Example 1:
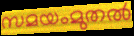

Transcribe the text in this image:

സമയംമുതൽ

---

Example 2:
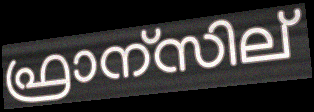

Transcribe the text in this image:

ഫ്രാന്സില്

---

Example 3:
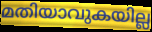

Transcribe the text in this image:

മതിയാവുകയില്ല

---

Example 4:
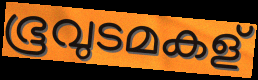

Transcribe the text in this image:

ഭൂവുടമകള്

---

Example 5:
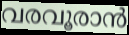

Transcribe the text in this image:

വരവൂരാൻ